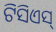
ଟିସିଏସ୍